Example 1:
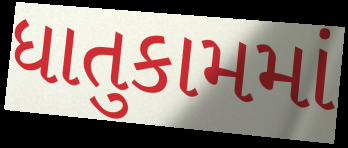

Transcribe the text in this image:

ધાતુકામમાં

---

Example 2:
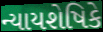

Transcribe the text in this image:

ન્યાયશેષિકે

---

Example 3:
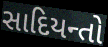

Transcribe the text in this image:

સાદિયન્તો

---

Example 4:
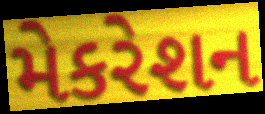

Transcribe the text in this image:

મેકરેશન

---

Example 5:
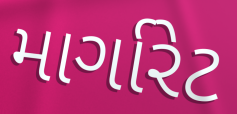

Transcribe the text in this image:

માર્ગારેટ